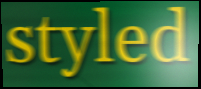
styled